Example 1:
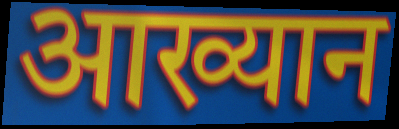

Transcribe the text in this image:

आख्यान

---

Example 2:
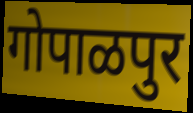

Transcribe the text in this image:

गोपाळपुर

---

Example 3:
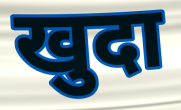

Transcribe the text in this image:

खुदा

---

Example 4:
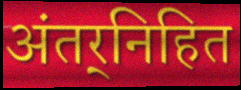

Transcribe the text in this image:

अंतर्निहित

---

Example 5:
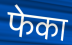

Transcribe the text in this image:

फेका